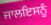
ਜਾਲਇਸਨੂੰ